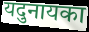
यदुनायका